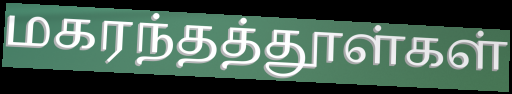
மகரந்தத்தூள்கள்